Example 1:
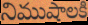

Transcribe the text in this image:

నిముషాలకి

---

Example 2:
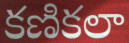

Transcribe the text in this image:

కణికలా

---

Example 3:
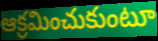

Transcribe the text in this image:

ఆక్రమించుకుంటూ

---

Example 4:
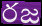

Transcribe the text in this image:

రజ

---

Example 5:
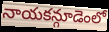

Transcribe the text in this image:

నాయకన్గూడెంలో